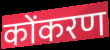
कोंकरण